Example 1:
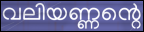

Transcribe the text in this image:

വലിയണ്ണന്റെ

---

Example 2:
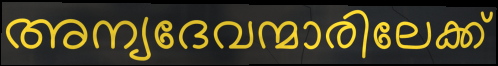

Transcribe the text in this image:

അന്യദേവന്മാരിലേക്ക്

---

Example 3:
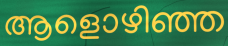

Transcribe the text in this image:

ആളൊഴിഞ്ഞ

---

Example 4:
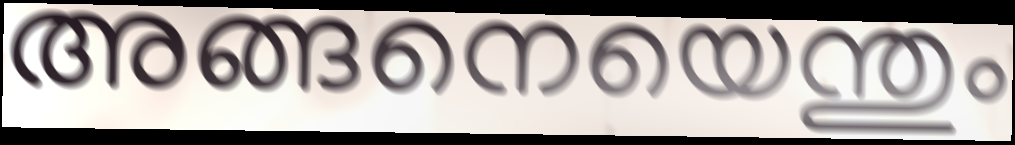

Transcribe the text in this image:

അങ്ങനെയെന്തും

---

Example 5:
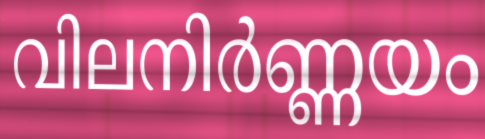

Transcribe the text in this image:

വിലനിർണ്ണയം